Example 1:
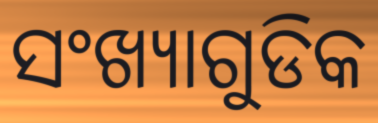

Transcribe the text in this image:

ସଂଖ୍ୟାଗୁଡିକ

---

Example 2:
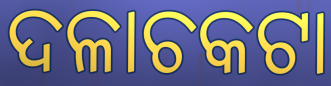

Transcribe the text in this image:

ଦଳାଚକଟା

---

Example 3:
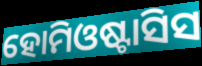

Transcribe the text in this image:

ହୋମିଓଷ୍ଟାସିସ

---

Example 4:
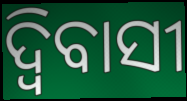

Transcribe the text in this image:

ଦ୍ବିବାସୀ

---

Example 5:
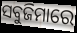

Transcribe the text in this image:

ସବୁଜିମାରେ